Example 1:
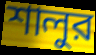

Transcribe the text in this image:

শালুর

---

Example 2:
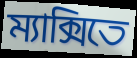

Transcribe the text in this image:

ম্যাক্সিতে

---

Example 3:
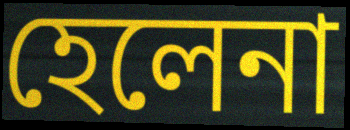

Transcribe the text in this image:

হেলেনা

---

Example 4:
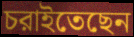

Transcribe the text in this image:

চরাইতেছেন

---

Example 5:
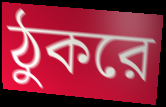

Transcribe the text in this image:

ঠুকরে